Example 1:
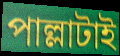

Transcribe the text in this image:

পাল্লাটাই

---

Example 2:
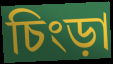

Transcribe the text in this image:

চিংড়া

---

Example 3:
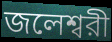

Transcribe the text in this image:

জলেশ্বরী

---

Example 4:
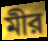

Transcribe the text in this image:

মীর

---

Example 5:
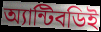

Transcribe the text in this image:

অ্যান্টিবডিই